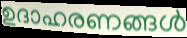
ഉദാഹരണങ്ങൾ